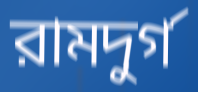
রামদুর্গ